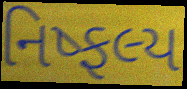
નિષ્ફલ્ય